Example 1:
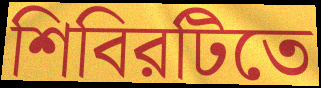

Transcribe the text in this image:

শিবিরটিতে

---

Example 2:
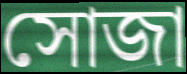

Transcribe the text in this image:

সোজা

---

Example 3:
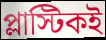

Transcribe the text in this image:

প্লাস্টিকই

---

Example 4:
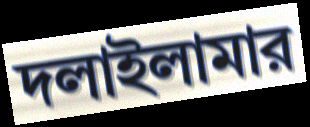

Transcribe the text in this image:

দলাইলামার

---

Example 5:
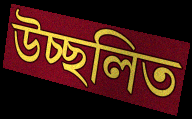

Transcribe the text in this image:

উচ্ছলিত